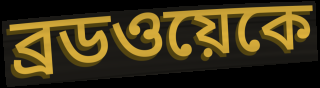
ব্রডওয়েকে